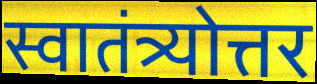
स्वातंत्र्योत्तर